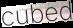
cubed